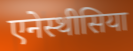
एनेस्थीसिया